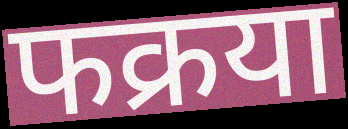
फक्रया